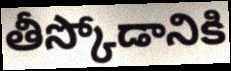
తీస్కోడానికి